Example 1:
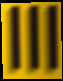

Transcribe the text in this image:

lll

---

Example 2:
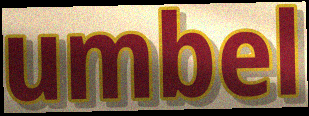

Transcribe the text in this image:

umbel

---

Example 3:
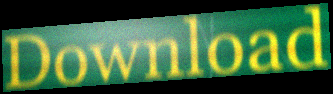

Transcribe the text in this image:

Download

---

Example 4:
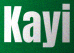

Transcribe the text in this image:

Kayi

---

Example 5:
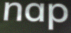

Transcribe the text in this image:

nap